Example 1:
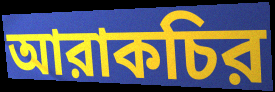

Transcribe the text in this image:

আরাকচির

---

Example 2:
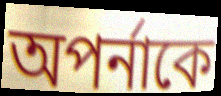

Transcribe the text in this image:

অপর্নাকে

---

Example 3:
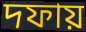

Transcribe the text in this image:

দফায়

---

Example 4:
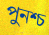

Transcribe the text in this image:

পুনশ্চ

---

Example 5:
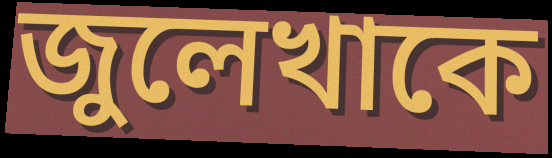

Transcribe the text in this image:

জুলেখাকে